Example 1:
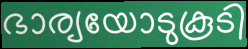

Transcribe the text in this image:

ഭാര്യയോടുകൂടി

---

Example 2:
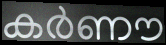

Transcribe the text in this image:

കർണൗ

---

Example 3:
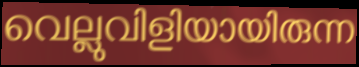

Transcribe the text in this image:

വെല്ലുവിളിയായിരുന്ന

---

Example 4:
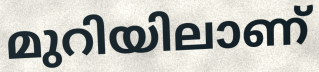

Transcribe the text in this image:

മുറിയിലാണ്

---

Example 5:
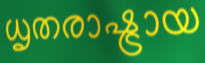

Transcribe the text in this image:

ധൃതരാഷ്ട്രായ